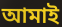
আমাই